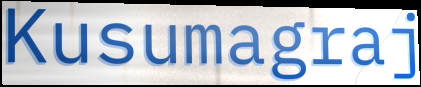
Kusumagraj